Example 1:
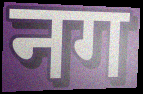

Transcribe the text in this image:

नग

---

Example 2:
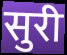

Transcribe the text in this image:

सुरी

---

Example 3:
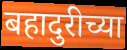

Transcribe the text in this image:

बहादुरीच्या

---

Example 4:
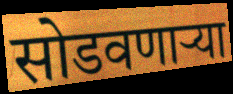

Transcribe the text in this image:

सोडवणाऱ्या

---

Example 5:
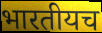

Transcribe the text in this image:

भारतीयच